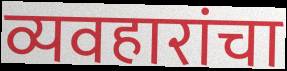
व्यवहारांचा